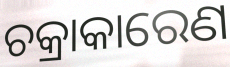
ଚକ୍ରାକାରେଣ